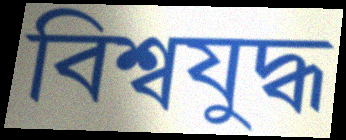
বিশ্বযুদ্ধ